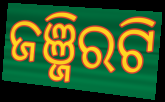
ଜଞ୍ଜିରଟି